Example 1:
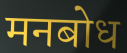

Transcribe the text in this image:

मनबोध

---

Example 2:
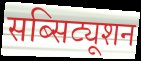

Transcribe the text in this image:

सब्सिट्यूशन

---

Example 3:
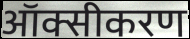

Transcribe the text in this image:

ऑक्सीकरण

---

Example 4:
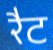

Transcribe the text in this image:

रैट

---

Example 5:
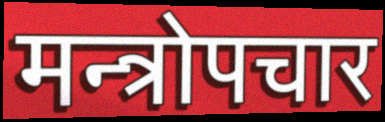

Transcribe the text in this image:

मन्त्रोपचार